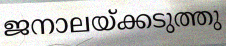
ജനാലയ്ക്കടുത്തു